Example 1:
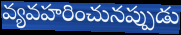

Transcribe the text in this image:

వ్యవహరించునప్పుడు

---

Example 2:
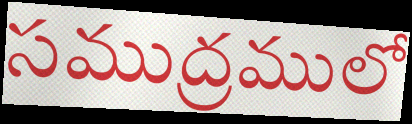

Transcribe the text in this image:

సముద్రములో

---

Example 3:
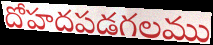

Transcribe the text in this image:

దోహదపడగలము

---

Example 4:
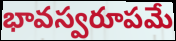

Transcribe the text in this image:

భావస్వరూపమే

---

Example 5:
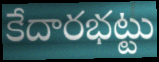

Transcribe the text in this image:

కేదారభట్టు